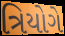
ત્રિયોગે